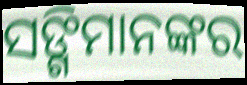
ସଙ୍ଗିମାନଙ୍କର